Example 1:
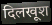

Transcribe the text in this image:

दिलखूश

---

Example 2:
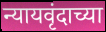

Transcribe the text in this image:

न्यायवृंदाच्या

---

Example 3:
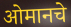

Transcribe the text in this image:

ओमानचे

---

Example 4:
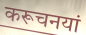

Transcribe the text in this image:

करूचनयां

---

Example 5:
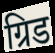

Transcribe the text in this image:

ग्रिड